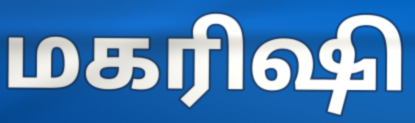
மகரிஷி